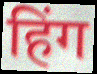
हिंग